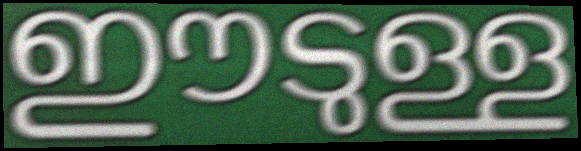
ഈടുള്ള